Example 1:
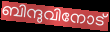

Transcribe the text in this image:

ബിന്ദുവിനോട്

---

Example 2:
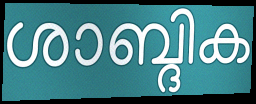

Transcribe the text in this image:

ശാബ്ദിക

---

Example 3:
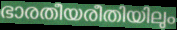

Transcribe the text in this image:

ഭാരതീയരീതിയിലും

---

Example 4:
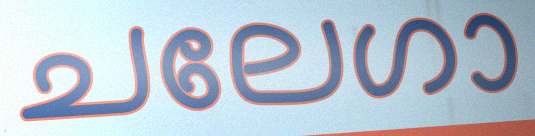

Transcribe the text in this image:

ചലേഗാ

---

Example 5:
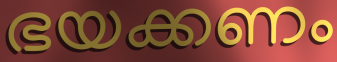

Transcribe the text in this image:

ഭയക്കണം